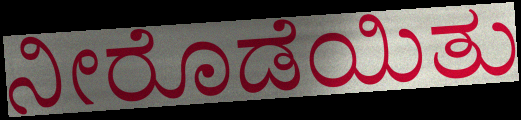
ನೀರೊಡೆಯಿತು